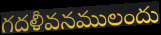
గదళీవనములందు